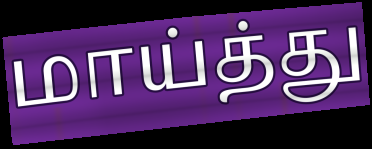
மாய்த்து